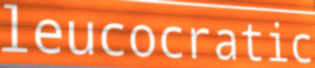
leucocratic